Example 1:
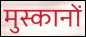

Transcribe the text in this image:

मुस्कानों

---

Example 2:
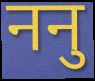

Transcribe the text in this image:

ननु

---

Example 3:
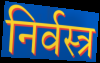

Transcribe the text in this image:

निर्वस्‍त्र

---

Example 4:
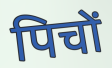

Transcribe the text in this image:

पिचों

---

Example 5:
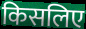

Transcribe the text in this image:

किसलिए